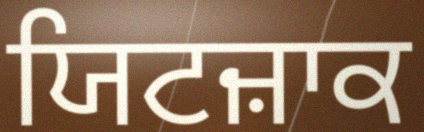
ਯਿਟਜ਼ਾਕ